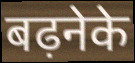
बढ़नेके